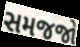
સમજજો